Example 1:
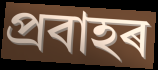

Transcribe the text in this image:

প্ৰবাহৰ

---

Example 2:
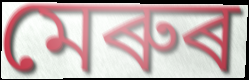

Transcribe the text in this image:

মেৰুৰ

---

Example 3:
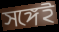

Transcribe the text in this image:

সঙ্গেই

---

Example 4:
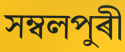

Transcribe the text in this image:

সম্বলপুৰী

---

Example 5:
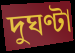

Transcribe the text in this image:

দুঘণ্টা